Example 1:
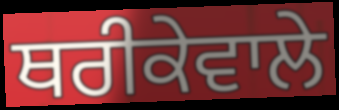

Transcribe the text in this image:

ਥਰੀਕੇਵਾਲੇ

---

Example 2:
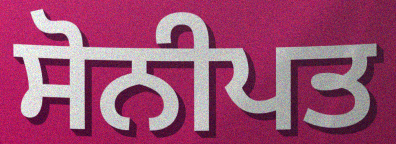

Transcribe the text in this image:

ਸੋਨੀਪਤ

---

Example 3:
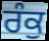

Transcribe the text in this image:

ਰੰਕੁ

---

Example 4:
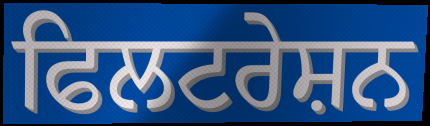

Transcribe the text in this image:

ਫਿਲਟਰੇਸ਼ਨ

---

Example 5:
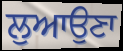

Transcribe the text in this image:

ਲੁਆਉਣਾ